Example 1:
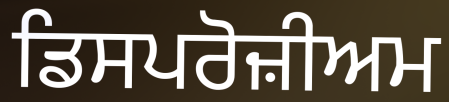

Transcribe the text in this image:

ਡਿਸਪਰੋਜ਼ੀਅਮ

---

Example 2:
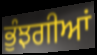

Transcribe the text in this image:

ਭੁੰਝਗੀਆਂ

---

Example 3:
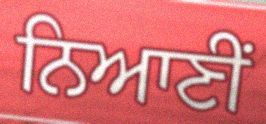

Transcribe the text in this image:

ਨਿਆਣੀਂ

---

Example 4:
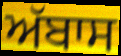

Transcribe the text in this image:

ਅੱਬਾਸ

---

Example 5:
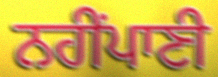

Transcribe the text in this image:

ਨਹੀਂਪਾਣੀ